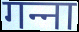
गन्‍ना